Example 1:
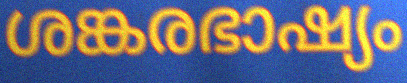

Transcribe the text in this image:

ശങ്കരഭാഷ്യം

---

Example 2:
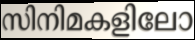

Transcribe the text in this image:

സിനിമകളിലോ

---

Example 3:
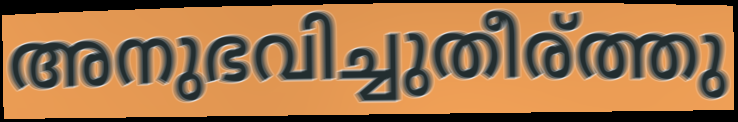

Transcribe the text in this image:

അനുഭവിച്ചുതീര്ത്തു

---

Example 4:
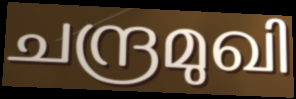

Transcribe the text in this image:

ചന്ദ്രമുഖി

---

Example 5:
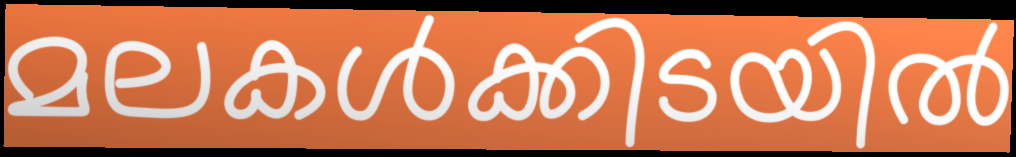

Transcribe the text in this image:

മലകൾക്കിടയിൽ